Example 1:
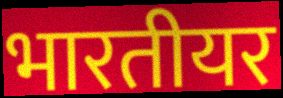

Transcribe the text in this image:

भारतीयर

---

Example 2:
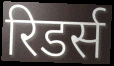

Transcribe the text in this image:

रिडर्स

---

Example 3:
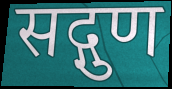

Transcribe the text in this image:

सद्गुण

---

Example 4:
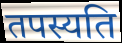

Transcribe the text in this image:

तपस्यति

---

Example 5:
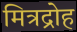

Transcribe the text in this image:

मित्रद्रोह